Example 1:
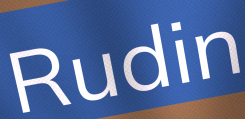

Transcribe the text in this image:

Rudin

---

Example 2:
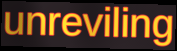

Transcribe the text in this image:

unreviling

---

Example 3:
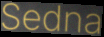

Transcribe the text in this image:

Sedna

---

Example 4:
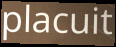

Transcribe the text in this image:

placuit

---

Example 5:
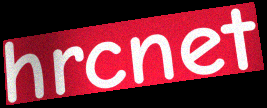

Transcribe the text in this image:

hrcnet